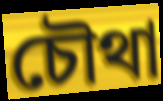
চৌথা